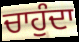
ਚਾਹੁੰਦਾ